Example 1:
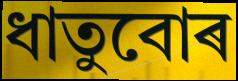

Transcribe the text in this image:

ধাতুবোৰ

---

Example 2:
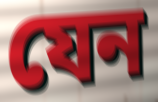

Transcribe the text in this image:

যেন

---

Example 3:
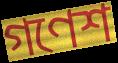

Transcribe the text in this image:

গণেশ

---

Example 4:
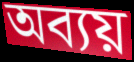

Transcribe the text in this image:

অব্যয়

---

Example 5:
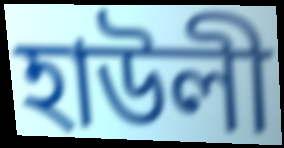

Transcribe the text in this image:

হাউলী